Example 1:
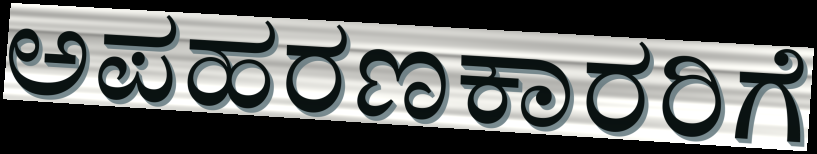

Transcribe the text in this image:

ಅಪಹರಣಕಾರರಿಗೆ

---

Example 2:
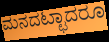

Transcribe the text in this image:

ಮನದಟ್ಟಾದರೂ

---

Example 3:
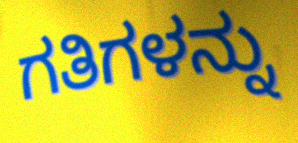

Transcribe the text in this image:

ಗತಿಗಳನ್ನು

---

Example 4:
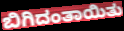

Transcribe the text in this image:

ಬಿಗಿದಂತಾಯಿತು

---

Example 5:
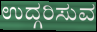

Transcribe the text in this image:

ಉದ್ಗರಿಸುವ